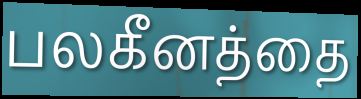
பலகீனத்தை